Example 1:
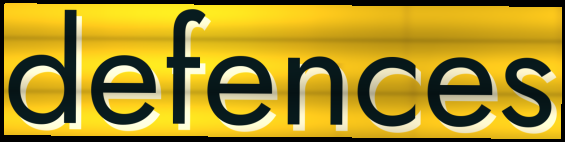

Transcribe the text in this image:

defences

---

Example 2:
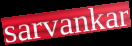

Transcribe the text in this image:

sarvankar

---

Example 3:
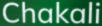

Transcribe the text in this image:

Chakali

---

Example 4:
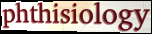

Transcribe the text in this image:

phthisiology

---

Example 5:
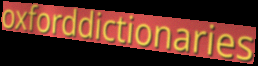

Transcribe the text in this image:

oxforddictionaries